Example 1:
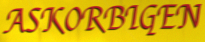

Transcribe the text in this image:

ASKORBIGEN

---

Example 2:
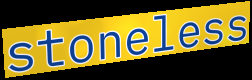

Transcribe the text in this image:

stoneless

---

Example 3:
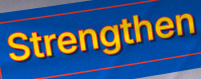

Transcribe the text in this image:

Strengthen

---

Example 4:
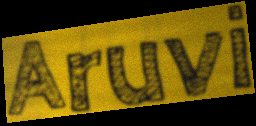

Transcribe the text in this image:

Aruvi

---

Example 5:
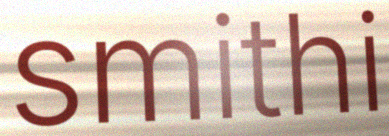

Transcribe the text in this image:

smithi